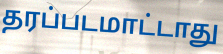
தரப்படமாட்டாது